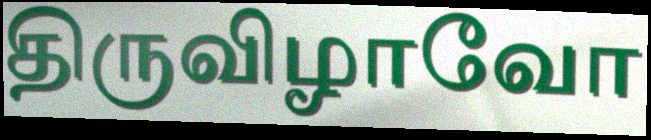
திருவிழாவோ